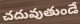
చదువుతుండే